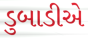
ડુબાડીએ